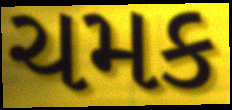
ચમક